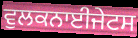
ਵੁਲਕਨਾਈਜੇਟਸ